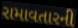
રામાવતારની